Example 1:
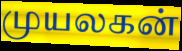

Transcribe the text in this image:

முயலகன்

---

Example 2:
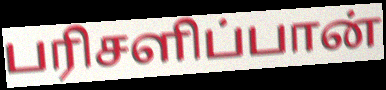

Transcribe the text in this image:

பரிசளிப்பான்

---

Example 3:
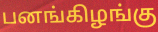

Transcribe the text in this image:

பனங்கிழங்கு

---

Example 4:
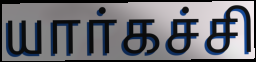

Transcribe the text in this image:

யார்கச்சி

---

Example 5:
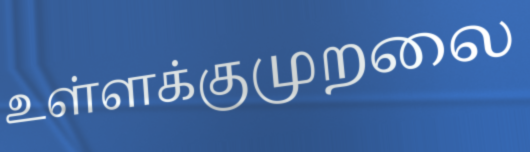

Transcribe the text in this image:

உள்ளக்குமுறலை